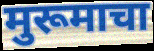
मुरूमाचा